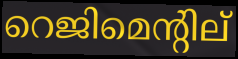
റെജിമെന്റില്